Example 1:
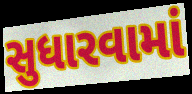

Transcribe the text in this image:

સુધારવામાં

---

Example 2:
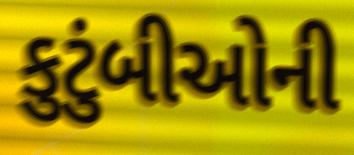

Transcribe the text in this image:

કુટુંબીઓની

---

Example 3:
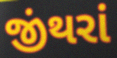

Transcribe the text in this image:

જીંથરાં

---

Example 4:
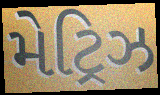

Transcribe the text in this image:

મેટ્રિઝ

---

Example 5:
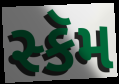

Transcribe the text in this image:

સ્કૅમ